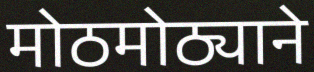
मोठमोठ्याने